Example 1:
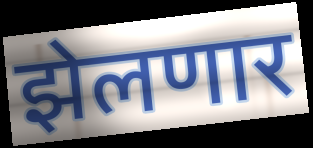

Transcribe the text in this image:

झेलणार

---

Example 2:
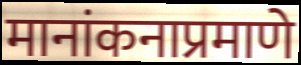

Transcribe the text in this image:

मानांकनाप्रमाणे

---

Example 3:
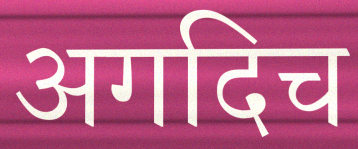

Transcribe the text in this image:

अगदिच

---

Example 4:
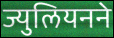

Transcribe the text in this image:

ज्युलियनने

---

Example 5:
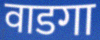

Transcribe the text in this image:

वाडगा